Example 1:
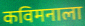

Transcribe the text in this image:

कविमनाला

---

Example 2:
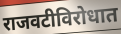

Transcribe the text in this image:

राजवटीविरोधात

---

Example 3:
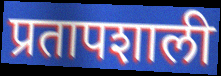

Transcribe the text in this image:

प्रतापशाली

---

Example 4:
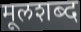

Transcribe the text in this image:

मूलशब्द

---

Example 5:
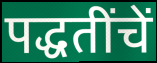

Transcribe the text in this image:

पद्धतींचें